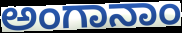
ಅಂಗಾನಾಂ